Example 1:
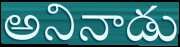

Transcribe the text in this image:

అనినాడు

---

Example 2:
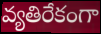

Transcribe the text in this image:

వ్యతిరేకంగా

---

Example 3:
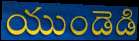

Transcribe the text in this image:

యుండెడి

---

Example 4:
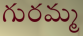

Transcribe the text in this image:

గురమ్మ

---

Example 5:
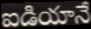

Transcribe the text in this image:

ఐడియానే